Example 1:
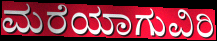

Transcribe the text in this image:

ಮರೆಯಾಗುವಿರಿ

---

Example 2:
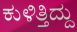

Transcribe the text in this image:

ಕುಳಿತ್ತಿದ್ದು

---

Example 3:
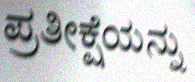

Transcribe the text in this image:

ಪ್ರತೀಕ್ಷೆಯನ್ನು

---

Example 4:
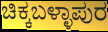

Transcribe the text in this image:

ಚಿಕ್ಕಬಳ್ಳಾಪುರ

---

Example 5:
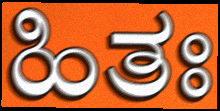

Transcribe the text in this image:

ಹಿತಃ